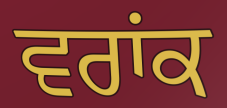
ਵਰਾਂਕ